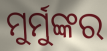
ମୁର୍ମୁଙ୍କର